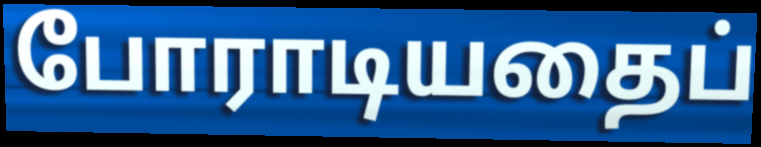
போராடியதைப்